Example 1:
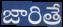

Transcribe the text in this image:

జారితే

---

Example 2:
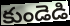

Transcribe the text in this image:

కుండెడి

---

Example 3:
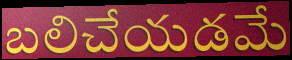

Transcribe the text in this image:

బలిచేయడమే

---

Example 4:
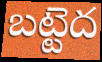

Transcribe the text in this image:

బట్టెద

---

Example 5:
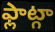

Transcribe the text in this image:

ఫ్లాట్గా